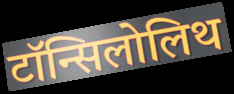
टॉन्सिलोलिथ